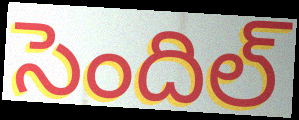
సెందిల్